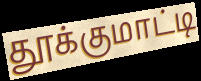
தூக்குமாட்டி